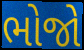
ભોજો